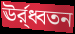
ঊর্র্ধ্বতন